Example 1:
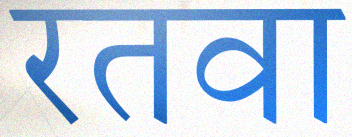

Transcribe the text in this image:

रतवा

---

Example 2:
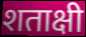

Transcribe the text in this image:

शताक्षी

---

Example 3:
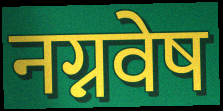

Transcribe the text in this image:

नग्नवेष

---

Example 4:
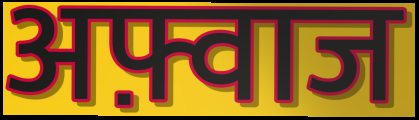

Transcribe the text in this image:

अफ़्वाज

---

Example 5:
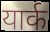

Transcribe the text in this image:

यार्क